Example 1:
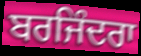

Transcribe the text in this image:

ਬਰਜਿੰਦਰਾ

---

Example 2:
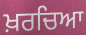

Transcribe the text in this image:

ਖ਼ਰਚਿਆ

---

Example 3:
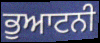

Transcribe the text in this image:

ਭੁਆਟਨੀ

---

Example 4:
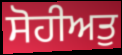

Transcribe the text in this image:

ਸੋਹੀਅਤੁ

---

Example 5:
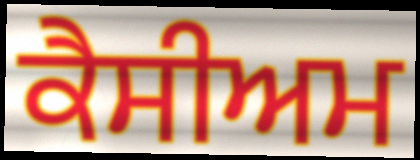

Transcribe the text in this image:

ਕੈਸੀਅਮ